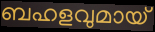
ബഹളവുമായ്